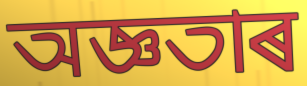
অজ্ঞতাৰ